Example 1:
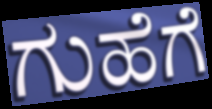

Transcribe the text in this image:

ಗುಹೆಗೆ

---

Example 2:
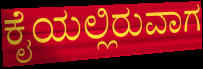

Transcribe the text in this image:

ಕೈಯಲ್ಲಿರುವಾಗ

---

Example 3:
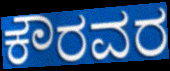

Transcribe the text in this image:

ಕೌರವರ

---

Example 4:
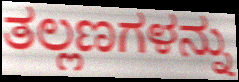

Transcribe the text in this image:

ತಲ್ಲಣಗಳನ್ನು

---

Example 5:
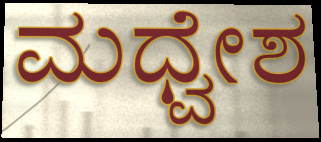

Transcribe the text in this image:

ಮಧ್ವೇಶ